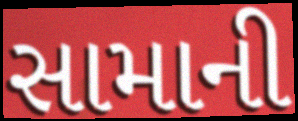
સામાની